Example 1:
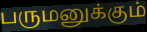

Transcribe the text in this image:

பருமனுக்கும்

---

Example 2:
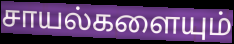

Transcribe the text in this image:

சாயல்களையும்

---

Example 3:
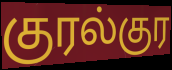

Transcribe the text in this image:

குரல்குர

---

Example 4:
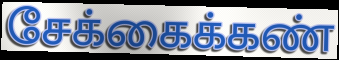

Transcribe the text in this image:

சேக்கைக்கண்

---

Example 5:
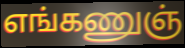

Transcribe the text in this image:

எங்கணுஞ்